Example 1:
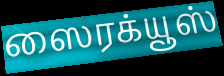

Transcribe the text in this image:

ஸைரக்யூஸ்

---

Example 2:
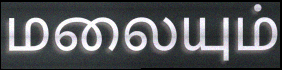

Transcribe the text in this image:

மலையும்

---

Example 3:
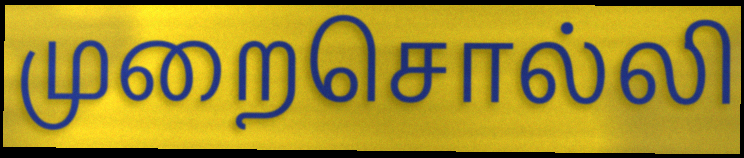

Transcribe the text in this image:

முறைசொல்லி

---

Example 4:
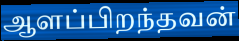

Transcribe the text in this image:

ஆளப்பிறந்தவன்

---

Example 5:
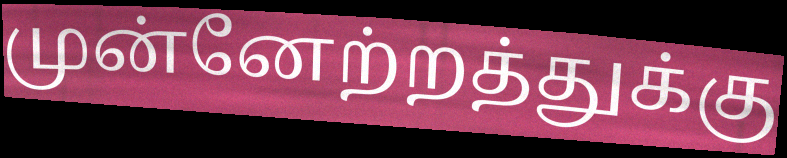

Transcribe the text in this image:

முன்னேற்றத்துக்கு